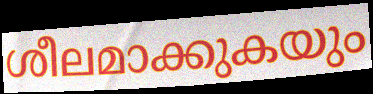
ശീലമാക്കുകയും